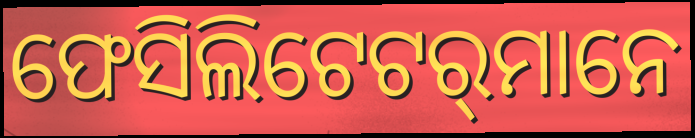
ଫେସିଲିଟେଟର୍‌ମାନେ